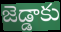
జెడ్డాకు